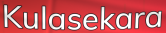
Kulasekara